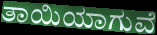
ತಾಯಿಯಾಗುವೆ